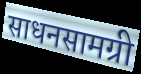
साधनसामग्री